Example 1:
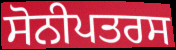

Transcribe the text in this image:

ਸੋਨੀਪਤਰਸ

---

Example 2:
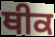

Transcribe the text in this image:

ਥੀਕ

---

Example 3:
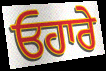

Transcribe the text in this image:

ਓਹਾਰੇ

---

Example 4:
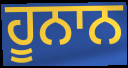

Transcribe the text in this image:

ਹੂਨਾਨ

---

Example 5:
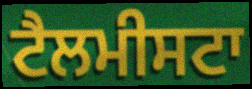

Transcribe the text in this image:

ਟੈਲਮੀਸਟਾ